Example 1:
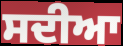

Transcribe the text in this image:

ਸਦੀਆ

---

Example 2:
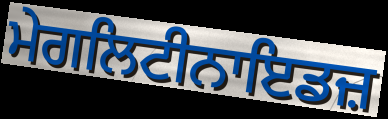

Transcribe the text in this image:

ਮੇਗਲਿਟੀਨਾਇਡਜ਼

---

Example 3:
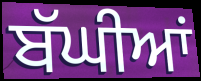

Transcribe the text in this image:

ਬੱਘੀਆਂ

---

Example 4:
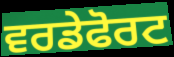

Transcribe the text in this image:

ਵਰਡੇਫੋਰਟ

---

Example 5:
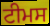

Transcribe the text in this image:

ਟੀਮਸ